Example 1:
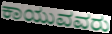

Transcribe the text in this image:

ಕಾಯುವವರು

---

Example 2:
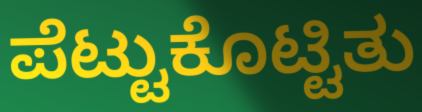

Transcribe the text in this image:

ಪೆಟ್ಟುಕೊಟ್ಟಿತು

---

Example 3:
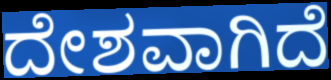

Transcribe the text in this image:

ದೇಶವಾಗಿದೆ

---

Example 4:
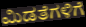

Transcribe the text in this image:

ಮಿಡತೆಗಳಿಗೆ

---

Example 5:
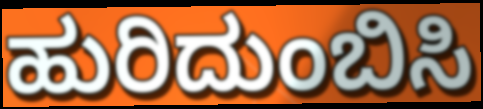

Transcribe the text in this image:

ಹುರಿದುಂಬಿಸಿ